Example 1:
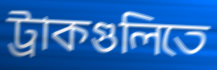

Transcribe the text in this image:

ট্রাকগুলিতে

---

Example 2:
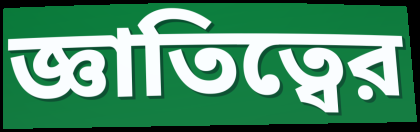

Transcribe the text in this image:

জ্ঞাতিত্বের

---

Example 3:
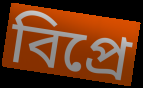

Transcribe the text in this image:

বিপ্রে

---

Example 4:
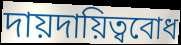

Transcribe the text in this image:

দায়দায়িত্ববোধ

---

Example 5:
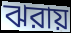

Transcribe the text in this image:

ঝরায়